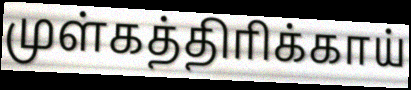
முள்கத்திரிக்காய்